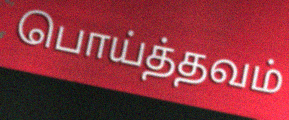
பொய்த்தவம்